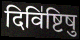
दिवि॑ष्टिषु